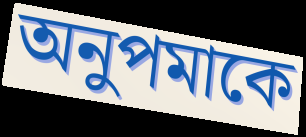
অনুপমাকে